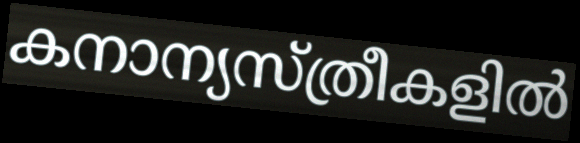
കനാന്യസ്ത്രീകളിൽ